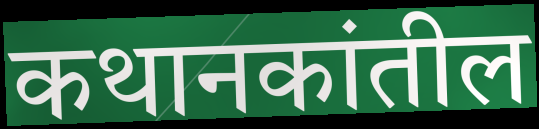
कथानकांतील